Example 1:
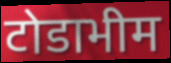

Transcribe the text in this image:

टोडाभीम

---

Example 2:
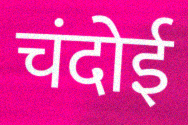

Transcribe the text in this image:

चंदोई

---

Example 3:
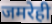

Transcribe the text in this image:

जमरेही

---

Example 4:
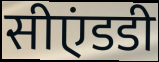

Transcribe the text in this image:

सीएंडडी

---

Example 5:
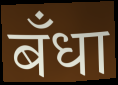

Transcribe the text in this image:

बँधा